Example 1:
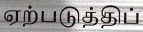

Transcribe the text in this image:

ஏற்படுத்திப்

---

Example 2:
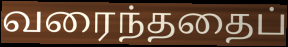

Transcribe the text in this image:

வரைந்ததைப்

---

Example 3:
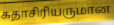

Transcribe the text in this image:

கதாசிரியருமான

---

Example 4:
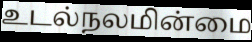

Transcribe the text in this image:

உடல்நலமின்மை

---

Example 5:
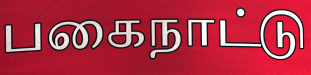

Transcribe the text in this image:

பகைநாட்டு